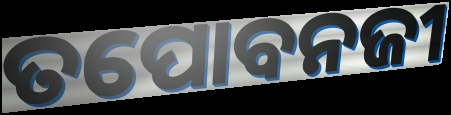
ତପୋବନଜୀ